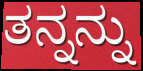
ತನ್ನನ್ನು